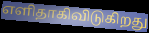
எளிதாகிவிடுகிறது